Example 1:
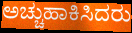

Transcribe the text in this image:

ಅಚ್ಚುಹಾಕಿಸಿದರು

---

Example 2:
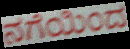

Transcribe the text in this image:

ನಗೆಯಿಂದ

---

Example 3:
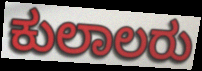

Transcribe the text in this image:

ಕುಲಾಲರು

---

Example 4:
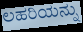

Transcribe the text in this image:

ಲಹರಿಯನ್ನು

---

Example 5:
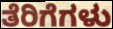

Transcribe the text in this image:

ತೆರಿಗೆಗಳು